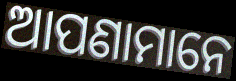
ଆପଣାମାନେ